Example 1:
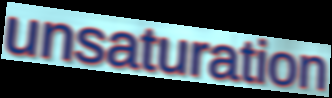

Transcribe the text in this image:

unsaturation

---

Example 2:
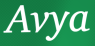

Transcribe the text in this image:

Avya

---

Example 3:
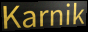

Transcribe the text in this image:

Karnik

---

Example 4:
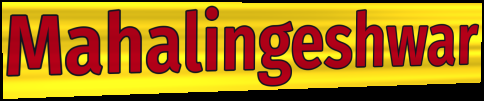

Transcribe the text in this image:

Mahalingeshwar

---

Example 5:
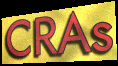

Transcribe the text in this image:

CRAs